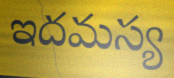
ఇదమస్య